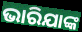
ଭାରିଯାଙ୍କ